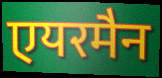
एयरमैन